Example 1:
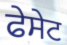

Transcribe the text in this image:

ਫੇਸੇਟ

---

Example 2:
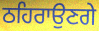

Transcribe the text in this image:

ਠਹਿਰਾਉਣਗੇ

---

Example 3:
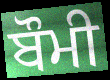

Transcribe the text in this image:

ਬੌਮੀ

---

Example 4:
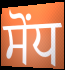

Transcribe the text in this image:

ਸੋਂਧ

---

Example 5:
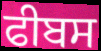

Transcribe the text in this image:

ਫੀਬਸ